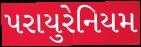
પરાયુરેનિયમ